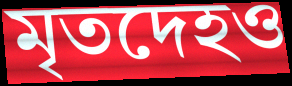
মৃতদেহও